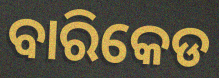
ବାରିକେଡ